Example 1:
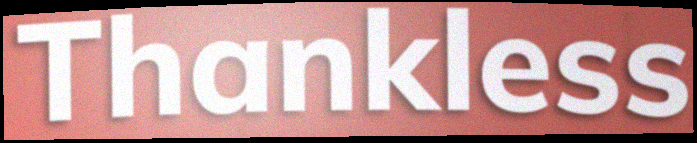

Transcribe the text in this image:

Thankless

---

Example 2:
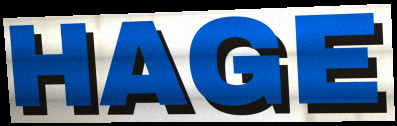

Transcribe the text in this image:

HAGE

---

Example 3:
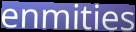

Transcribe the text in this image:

enmities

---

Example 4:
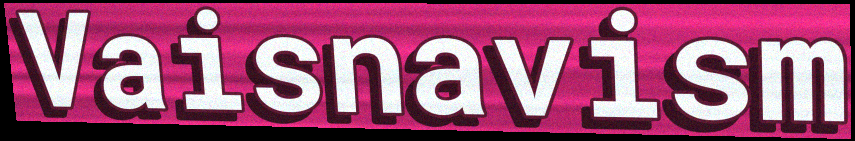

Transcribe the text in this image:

Vaisnavism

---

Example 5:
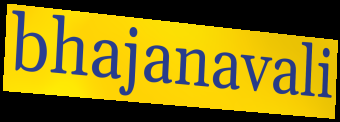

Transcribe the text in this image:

bhajanavali